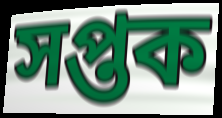
সপ্তক